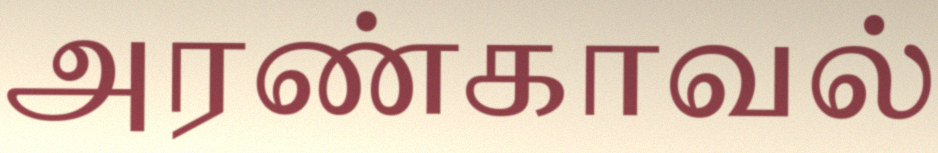
அரண்காவல்